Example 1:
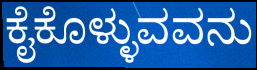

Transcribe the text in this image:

ಕೈಕೊಳ್ಳುವವನು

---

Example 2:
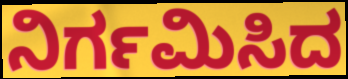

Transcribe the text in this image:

ನಿರ್ಗಮಿಸಿದ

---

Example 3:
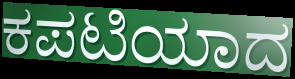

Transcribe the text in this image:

ಕಪಟಿಯಾದ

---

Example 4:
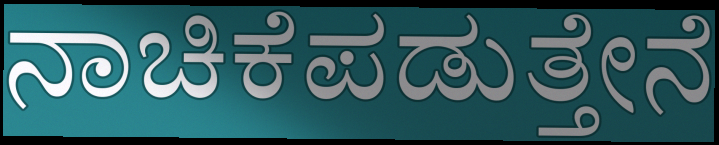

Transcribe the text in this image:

ನಾಚಿಕೆಪಡುತ್ತೇನೆ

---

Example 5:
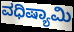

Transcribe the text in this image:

ವಧಿಷ್ಯಾಮಿ